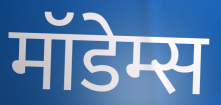
मॉडेम्स